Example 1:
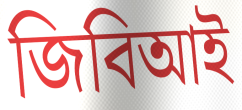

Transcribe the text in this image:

জিবিআই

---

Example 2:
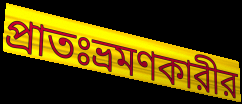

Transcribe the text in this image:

প্রাতঃভ্রমণকারীর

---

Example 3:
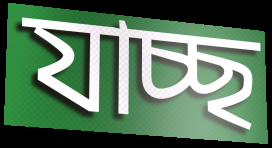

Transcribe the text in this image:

যাচ্ছ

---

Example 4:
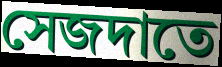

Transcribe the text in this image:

সেজদাতে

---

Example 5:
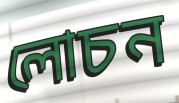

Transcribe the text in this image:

লোচন